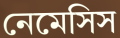
নেমেসিস